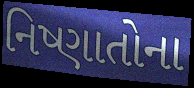
નિષ્ણાતોના